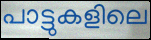
പാട്ടുകളിലെ